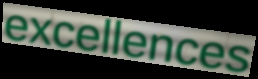
excellences